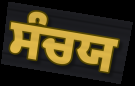
ਸੰਚਯ